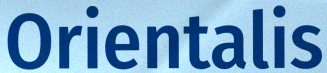
Orientalis